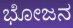
ಭೋಜನ